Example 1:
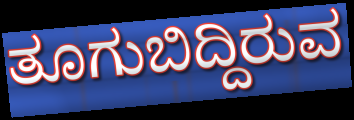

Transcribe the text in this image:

ತೂಗುಬಿದ್ದಿರುವ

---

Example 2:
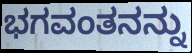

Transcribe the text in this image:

ಭಗವಂತನನ್ನು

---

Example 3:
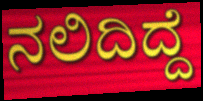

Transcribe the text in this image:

ನಲಿದಿದ್ದೆ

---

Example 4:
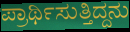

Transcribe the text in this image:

ಪ್ರಾರ್ಥಿಸುತ್ತಿದ್ದನು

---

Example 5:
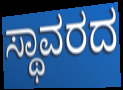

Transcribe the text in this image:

ಸ್ಥಾವರದ